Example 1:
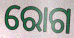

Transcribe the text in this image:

ରୋଗ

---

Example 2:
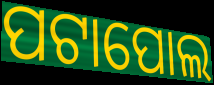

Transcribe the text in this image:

ପଟାପୋଲ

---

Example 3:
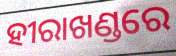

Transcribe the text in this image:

ହୀରାଖଣ୍ଡରେ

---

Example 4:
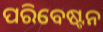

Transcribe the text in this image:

ପରିବେଷ୍ଟନ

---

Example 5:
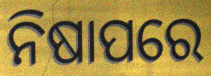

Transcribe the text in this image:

ନିଷାପରେ